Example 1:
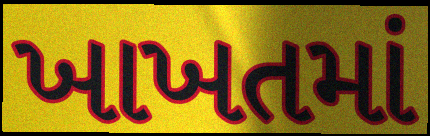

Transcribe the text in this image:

ખાખતમાં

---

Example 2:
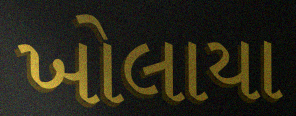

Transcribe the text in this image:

ખોલાયા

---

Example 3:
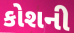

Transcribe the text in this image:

કોશની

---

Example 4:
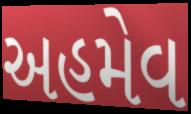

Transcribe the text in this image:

અહમેવ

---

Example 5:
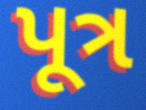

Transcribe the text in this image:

પૂત્ર